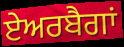
ਏਅਰਬੈਗਾਂ